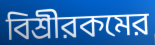
বিশ্রীরকমের